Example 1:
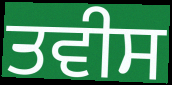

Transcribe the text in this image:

ਤਵੀਸ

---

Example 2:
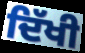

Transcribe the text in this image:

ਦਿੱਖੀ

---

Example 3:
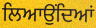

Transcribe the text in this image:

ਲਿਆਉਂਦਿਆਂ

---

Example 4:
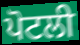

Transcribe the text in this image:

ਪੋਟਲੀ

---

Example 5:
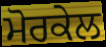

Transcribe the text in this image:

ਮੋਰਕੇਲ